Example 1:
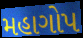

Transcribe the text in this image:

મહાગોપ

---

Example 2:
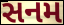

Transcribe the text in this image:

સનમ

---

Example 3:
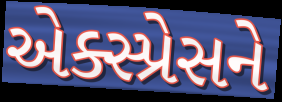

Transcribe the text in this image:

એક્સ્પ્રેસને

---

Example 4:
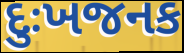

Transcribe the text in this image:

દુઃખજનક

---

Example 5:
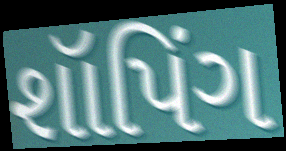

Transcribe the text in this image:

શૉપિંગ